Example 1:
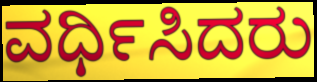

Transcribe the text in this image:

ವರ್ಧಿಸಿದರು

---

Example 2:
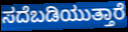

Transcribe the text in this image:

ಸದೆಬಡಿಯುತ್ತಾರೆ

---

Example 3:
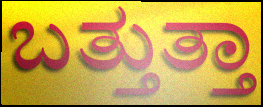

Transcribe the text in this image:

ಬತ್ತುತ್ತಾ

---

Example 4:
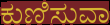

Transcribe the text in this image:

ಕುಣಿಸುವಾ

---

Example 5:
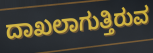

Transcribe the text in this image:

ದಾಖಲಾಗುತ್ತಿರುವ